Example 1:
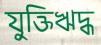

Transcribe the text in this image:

যুক্তিঋদ্ধ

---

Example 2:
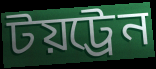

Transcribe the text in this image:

টয়ট্রেন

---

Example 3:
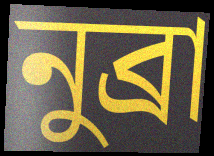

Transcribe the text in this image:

নুব্রা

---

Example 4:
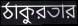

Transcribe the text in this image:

ঠাকুরতার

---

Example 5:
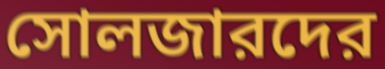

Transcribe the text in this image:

সোলজারদের